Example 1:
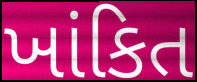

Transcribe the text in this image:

ખાંકિત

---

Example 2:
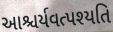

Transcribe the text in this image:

આશ્ચર્યવત્પશ્યતિ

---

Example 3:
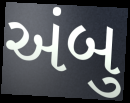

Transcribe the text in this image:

અંબુ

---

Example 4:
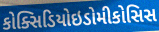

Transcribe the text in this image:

કોક્સિડિયોઇડોમીકોસિસ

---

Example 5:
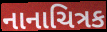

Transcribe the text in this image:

નાનાચિત્રક